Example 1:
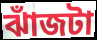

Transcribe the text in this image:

ঝাঁজটা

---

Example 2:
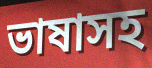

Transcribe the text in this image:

ভাষাসহ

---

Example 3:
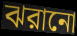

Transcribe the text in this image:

ঝরানো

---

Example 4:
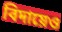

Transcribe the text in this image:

বিদায়েও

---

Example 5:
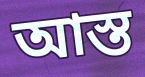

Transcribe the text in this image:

আস্ত